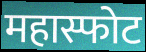
महास्फोट